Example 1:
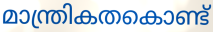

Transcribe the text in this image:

മാന്ത്രികതകൊണ്ട്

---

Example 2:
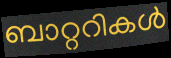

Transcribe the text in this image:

ബാറ്ററികൾ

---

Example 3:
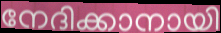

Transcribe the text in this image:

നേദിക്കാനായി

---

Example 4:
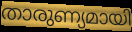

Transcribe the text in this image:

താരുണ്യമായി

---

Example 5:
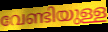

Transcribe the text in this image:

വേണ്ടിയുള്ള